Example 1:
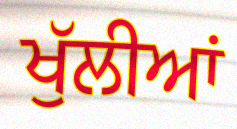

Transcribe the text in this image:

ਖੁੱਲੀਆਂ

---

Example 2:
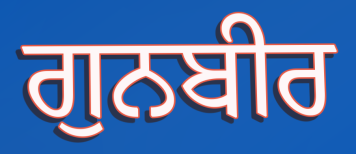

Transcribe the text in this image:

ਗੁਨਬੀਰ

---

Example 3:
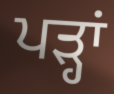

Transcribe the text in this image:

ਪੜ੍ਹਾਂ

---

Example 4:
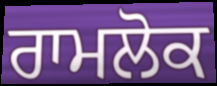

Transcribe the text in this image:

ਰਾਮਲੋਕ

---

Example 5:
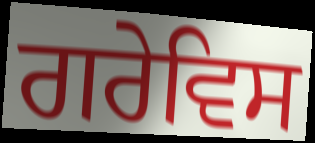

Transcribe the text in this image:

ਗਰੇਵਿਸ